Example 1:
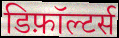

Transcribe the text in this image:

डिफ़ॉल्टर्स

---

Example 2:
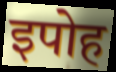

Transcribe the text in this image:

इपोह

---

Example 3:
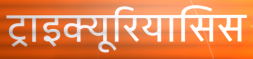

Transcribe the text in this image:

ट्राइक्यूरियासिस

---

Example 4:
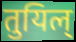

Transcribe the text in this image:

तुयिल्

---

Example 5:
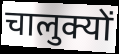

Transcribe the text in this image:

चालुक्यों